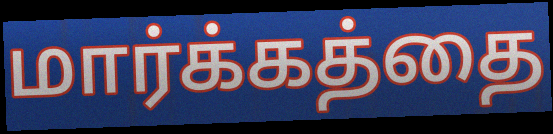
மார்க்கத்தை